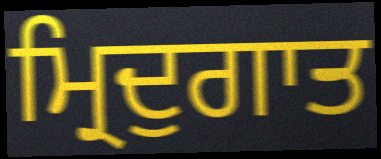
ਮ੍ਰਿਦੁਗਾਤ